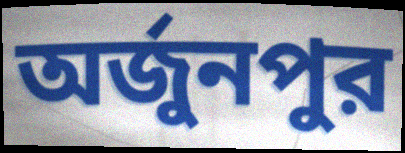
অর্জুনপুর